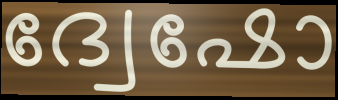
ദ്വേഷോ